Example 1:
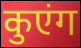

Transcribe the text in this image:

कुएंग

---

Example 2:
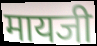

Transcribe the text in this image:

मायजी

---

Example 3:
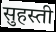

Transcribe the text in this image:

सुहस्ती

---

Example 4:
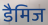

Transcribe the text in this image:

डैमिज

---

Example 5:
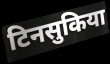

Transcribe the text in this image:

टिनसुकिया